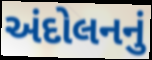
અંદોલનનું